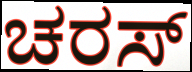
ಚರಸ್